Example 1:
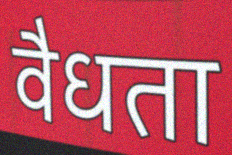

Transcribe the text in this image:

वैधता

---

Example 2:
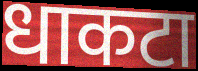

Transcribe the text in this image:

धाकटा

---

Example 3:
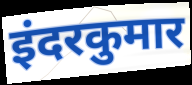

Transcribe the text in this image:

इंदरकुमार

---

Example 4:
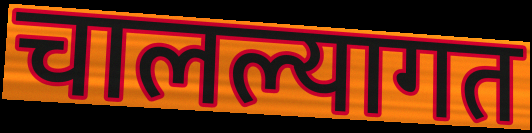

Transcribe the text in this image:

चालल्यागत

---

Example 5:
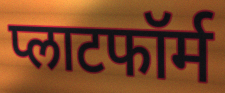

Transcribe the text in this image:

प्लाटफॉर्म